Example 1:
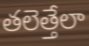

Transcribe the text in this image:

తలెత్తేలా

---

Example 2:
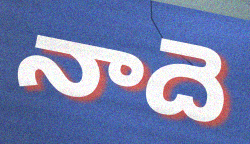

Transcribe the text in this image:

నాదె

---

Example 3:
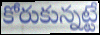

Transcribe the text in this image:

కోరుకున్నట్టే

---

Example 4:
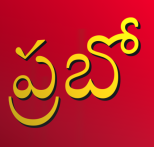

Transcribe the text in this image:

ప్రబో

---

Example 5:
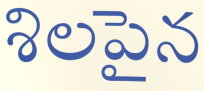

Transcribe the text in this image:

శిలపైన